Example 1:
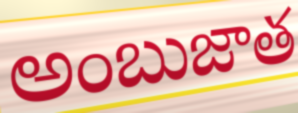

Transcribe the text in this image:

అంబుజాత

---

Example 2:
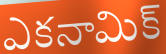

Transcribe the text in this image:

ఎకనామిక్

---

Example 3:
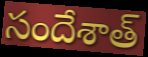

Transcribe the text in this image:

సందేశాత్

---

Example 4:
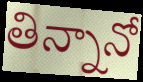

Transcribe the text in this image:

తిన్నానో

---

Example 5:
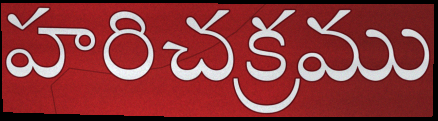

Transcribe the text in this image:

హరిచక్రము